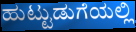
ಹುಟ್ಟುಡುಗೆಯಲ್ಲಿ